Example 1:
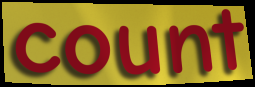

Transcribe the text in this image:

count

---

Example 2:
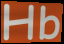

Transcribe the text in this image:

Hb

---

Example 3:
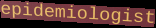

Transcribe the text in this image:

epidemiologist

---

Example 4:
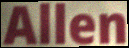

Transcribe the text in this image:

Allen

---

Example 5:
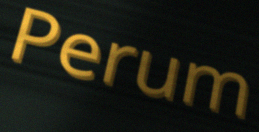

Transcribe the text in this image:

Perum